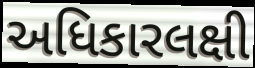
અધિકારલક્ષી